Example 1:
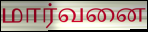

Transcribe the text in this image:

மார்வனை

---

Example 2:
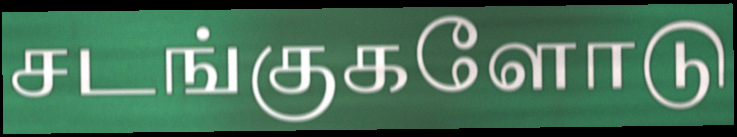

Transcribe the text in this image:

சடங்குகளோடு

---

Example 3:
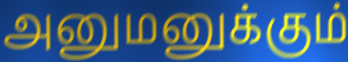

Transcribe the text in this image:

அனுமனுக்கும்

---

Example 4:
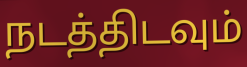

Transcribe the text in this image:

நடத்திடவும்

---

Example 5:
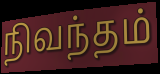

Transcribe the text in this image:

நிவந்தம்